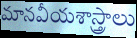
మానవీయశాస్త్రాలు